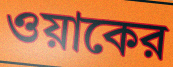
ওয়াকের